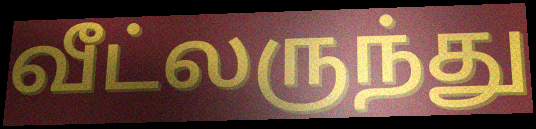
வீட்லருந்து